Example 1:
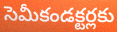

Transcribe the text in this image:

సెమీకండక్టర్లకు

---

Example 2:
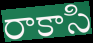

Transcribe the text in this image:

రాకాసి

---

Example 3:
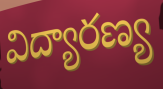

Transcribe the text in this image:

విద్యారణ్య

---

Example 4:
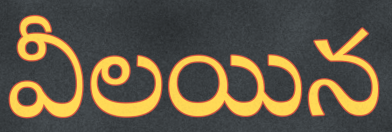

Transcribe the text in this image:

వీలయిన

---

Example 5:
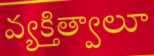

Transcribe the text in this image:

వ్యక్తిత్వాలూ